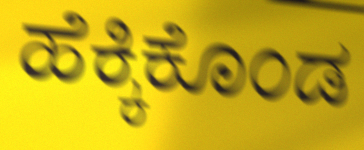
ಹೆಕ್ಕಿಕೊಂಡ